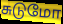
சுடுமோ